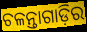
ଚଳନ୍ତାଗାଡ଼ିର